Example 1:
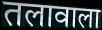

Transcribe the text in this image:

तलावाला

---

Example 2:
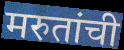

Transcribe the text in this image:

मरुतांची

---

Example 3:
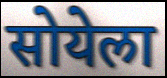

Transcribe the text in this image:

सोयेला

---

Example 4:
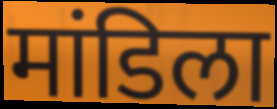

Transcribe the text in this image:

मांडिला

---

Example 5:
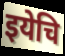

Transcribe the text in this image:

इयेचि